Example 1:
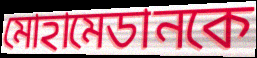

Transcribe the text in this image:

মোহামেডানকে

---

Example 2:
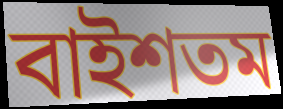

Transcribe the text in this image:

বাইশতম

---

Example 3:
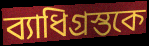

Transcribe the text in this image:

ব্যাধিগ্রস্তকে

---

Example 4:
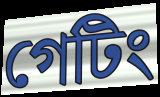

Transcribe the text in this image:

গেটিং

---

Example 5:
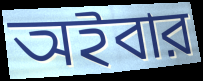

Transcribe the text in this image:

অইবার